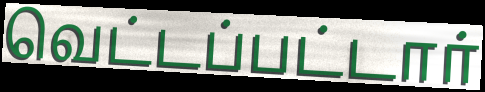
வெட்டப்பட்டார்